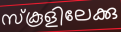
സ്കൂളിലേക്കു